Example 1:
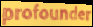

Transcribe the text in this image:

profounder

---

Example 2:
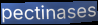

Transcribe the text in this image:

pectinases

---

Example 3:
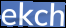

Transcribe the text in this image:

ekch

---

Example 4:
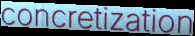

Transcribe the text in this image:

concretization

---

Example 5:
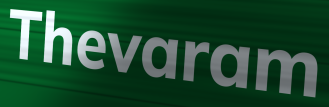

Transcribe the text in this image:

Thevaram